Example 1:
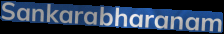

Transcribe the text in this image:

Sankarabharanam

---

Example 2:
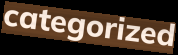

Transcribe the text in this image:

categorized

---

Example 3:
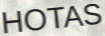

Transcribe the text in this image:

HOTAS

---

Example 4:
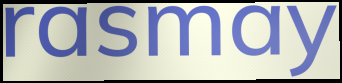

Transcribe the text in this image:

rasmay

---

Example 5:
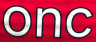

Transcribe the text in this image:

onc